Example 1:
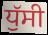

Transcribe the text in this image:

ਧੁੱਸੀ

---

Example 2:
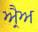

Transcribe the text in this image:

ਅ੍ਰੈਅ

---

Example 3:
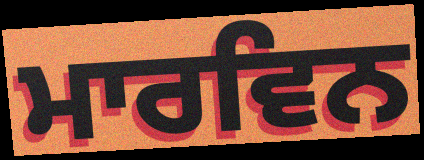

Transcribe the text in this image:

ਮਾਰਵਿਨ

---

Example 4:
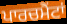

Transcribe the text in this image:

ਪਾਰਚਮੈਂਟਾਂ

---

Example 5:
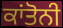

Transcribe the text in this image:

ਕਾਂਤੋਨੀ